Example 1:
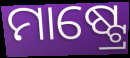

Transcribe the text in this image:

ମାଷ୍ଟ୍ରେ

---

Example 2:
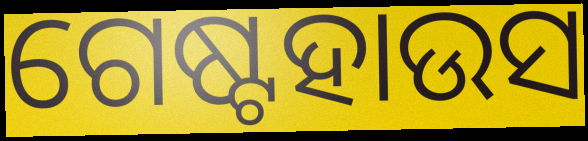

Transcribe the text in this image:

ଗେଷ୍ଟହାଉସ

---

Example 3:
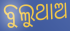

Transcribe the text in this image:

ବୁଲୁଥାଅ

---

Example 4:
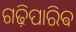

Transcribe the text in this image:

ଗଢ଼ିପାରିଵ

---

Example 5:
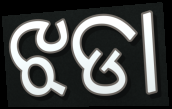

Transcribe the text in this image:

ଝଡା